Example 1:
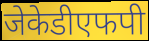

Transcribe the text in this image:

जेकेडीएफपी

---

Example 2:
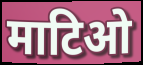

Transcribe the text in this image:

माटिओ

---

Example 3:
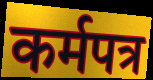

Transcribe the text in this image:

कर्मपत्र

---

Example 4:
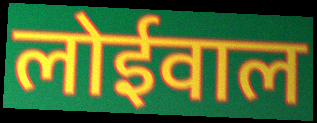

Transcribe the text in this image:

लोईवाल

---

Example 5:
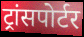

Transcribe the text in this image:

ट्रांसपोर्टर